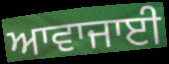
ਆਵਾਜਾਈ